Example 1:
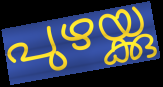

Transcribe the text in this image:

പുഴയ്ക്കു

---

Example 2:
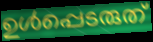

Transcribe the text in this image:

ഉൾപ്പെടരുത്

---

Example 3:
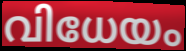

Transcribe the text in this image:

വിധേയം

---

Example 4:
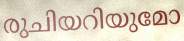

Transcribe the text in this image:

രുചിയറിയുമോ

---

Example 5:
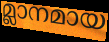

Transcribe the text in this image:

മ്ലാനമായ